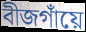
বীজগাঁয়ে